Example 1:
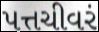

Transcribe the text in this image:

પત્તચીવરં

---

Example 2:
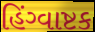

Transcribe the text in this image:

હિંગ્વાષ્ટક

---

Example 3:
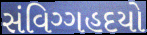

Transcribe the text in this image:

સંવિગ્ગહદયો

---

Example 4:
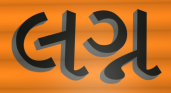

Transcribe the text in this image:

લગ્ન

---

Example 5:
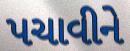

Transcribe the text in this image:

પચાવીને